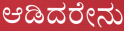
ಆಡಿದರೇನು